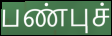
பண்புச்